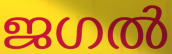
ജഗൽ